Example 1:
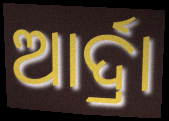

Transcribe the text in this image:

ଆର୍ଦ୍ରା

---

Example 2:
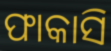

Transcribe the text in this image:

ଫାକାସି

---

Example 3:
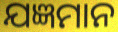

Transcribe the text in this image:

ଯଜ୍ଞମାନ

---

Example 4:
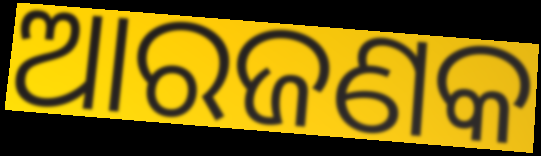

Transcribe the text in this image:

ଆରଜଣକ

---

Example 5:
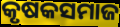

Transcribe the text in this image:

କୃଷକସମାଜ